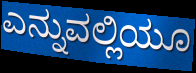
ಎನ್ನುವಲ್ಲಿಯೂ